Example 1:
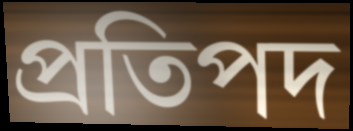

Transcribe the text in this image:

প্রতিপদ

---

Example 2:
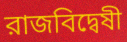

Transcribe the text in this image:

রাজবিদ্বেষী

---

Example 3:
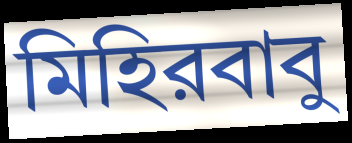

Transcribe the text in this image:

মিহিরবাবু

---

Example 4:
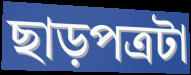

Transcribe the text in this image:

ছাড়পত্রটা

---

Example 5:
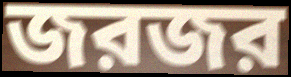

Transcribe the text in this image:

জরজর